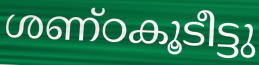
ശണ്ഠകൂടീട്ടു